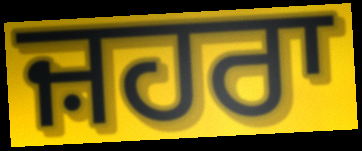
ਜ਼ਹਰਾ